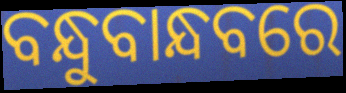
ବନ୍ଧୁବାନ୍ଧବରେ